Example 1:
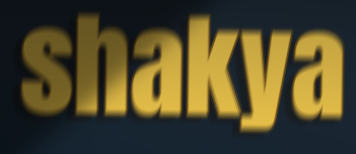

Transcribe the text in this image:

shakya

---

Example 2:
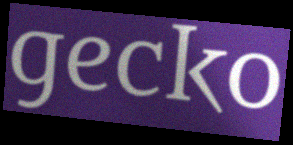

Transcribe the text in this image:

gecko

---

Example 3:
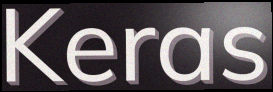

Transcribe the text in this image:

Keras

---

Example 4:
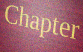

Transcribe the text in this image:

Chapter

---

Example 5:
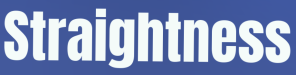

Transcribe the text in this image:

Straightness